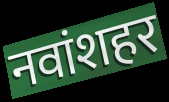
नवांशहर